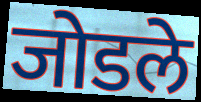
जोडले